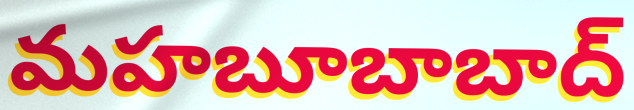
మహబూబాబాద్